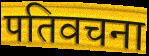
पतिवचना